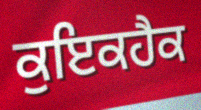
ਕੁਇਕਹੈਕ